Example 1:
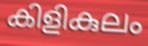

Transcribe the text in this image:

കിളികുലം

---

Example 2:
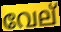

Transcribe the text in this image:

വേല്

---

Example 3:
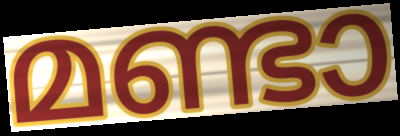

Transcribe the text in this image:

മണ്ടാ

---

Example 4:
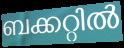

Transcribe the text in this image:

ബക്കറ്റിൽ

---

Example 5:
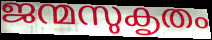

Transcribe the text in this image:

ജന്മസുകൃതം